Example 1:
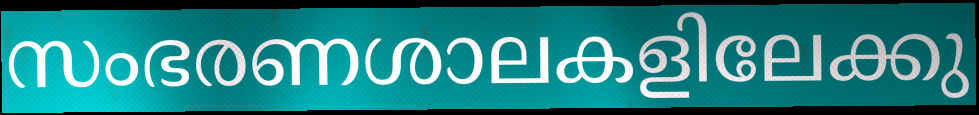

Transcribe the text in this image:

സംഭരണശാലകളിലേക്കു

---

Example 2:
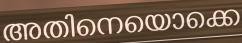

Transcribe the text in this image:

അതിനെയൊക്കെ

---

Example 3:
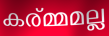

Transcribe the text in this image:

കര്മ്മമല്ല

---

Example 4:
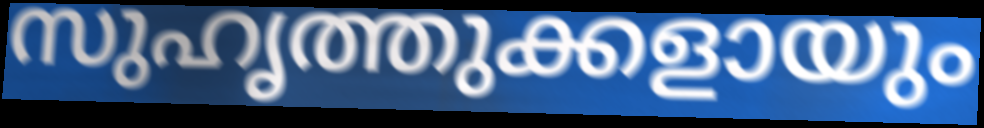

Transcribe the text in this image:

സുഹൃത്തുക്കളായും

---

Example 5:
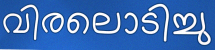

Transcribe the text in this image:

വിരലൊടിച്ചു